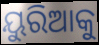
ୟୁରିଆକୁ